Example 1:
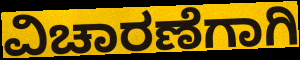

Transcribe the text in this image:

ವಿಚಾರಣೆಗಾಗಿ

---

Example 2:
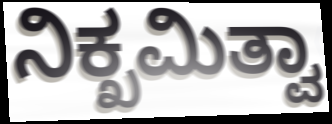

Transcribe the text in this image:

ನಿಕ್ಖಮಿತ್ವಾ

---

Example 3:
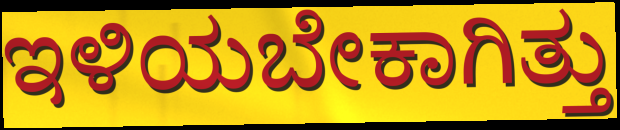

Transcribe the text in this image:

ಇಳಿಯಬೇಕಾಗಿತ್ತು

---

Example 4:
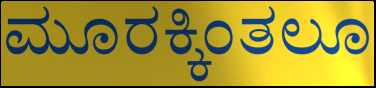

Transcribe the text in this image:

ಮೂರಕ್ಕಿಂತಲೂ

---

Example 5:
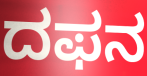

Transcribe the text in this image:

ದಫನ